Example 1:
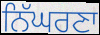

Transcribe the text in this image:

ਨਿੱਘਰਣਾ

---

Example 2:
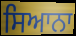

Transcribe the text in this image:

ਸਿਆਨਾ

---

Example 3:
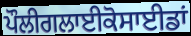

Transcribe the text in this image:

ਪੌਲੀਗਲਾਈਕੋਸਾਈਡਾਂ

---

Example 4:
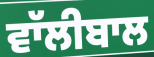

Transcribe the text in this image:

ਵਾੱਲੀਬਾਲ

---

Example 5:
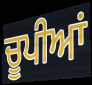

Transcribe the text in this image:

ਚੂਪੀਆਂ